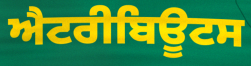
ਐਟਰੀਬਿਊਟਸ